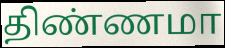
திண்ணமா